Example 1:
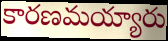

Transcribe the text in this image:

కారణమయ్యారు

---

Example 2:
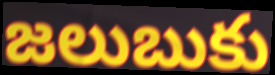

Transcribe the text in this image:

జలుబుకు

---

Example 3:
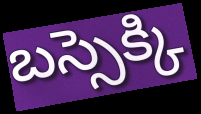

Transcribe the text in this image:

బస్సెక్కి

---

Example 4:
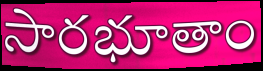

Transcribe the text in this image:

సారభూతాం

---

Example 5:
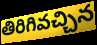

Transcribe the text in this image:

తిరిగివచ్చిన